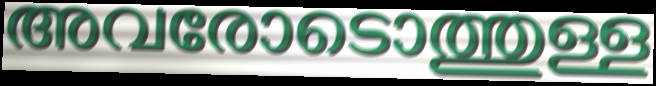
അവരോടൊത്തുള്ള